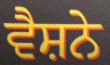
ਵੈਸ਼ਨੇ